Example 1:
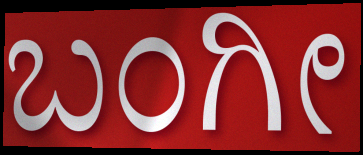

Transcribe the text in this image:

ಬಂಗೀ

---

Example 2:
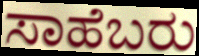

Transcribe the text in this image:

ಸಾಹೆಬರು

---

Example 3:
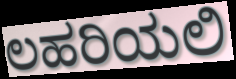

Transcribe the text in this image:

ಲಹರಿಯಲಿ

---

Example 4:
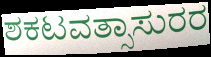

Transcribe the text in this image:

ಶಕಟವತ್ಸಾಸುರರ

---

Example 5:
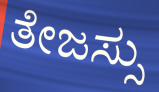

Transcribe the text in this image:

ತೇಜಸ್ಸು